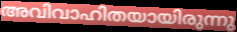
അവിവാഹിതയായിരുന്നു